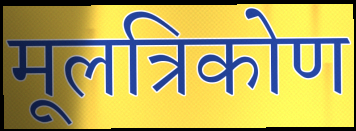
मूलत्रिकोण